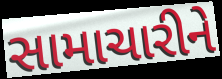
સામાચારીને